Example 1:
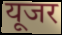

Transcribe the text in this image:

यूजर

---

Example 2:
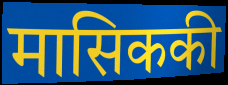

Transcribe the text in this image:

मासिककी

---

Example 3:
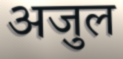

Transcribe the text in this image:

अजुल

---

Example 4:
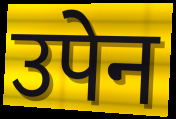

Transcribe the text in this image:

उपेन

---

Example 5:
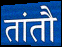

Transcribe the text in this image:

तांतौ